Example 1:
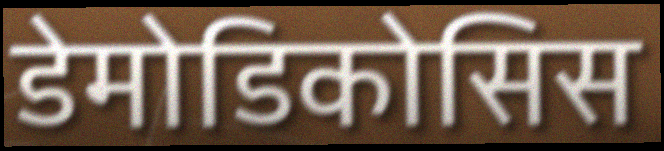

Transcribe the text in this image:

डेमोडिकोसिस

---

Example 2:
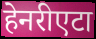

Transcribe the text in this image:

हेनरीएटा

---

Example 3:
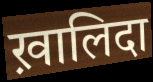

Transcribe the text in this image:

ख़ालिदा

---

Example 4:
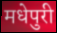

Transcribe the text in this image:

मधेपुरी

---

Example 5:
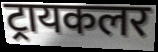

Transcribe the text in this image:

ट्रायकलर